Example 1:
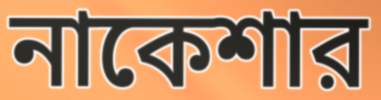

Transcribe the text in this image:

নাকেশার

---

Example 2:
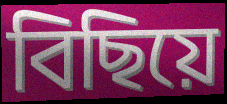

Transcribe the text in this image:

বিছিয়ে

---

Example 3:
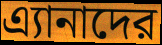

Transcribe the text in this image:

এ্যানাদের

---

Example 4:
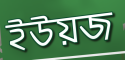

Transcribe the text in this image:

ইউয়জ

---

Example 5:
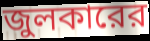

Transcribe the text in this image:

জুলকারের